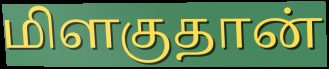
மிளகுதான்